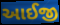
આઈજી